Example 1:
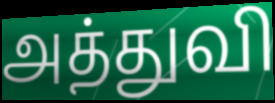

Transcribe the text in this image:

அத்துவி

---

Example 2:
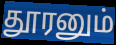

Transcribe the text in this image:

தூரனும்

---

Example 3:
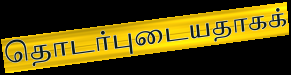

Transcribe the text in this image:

தொடர்புடையதாகக்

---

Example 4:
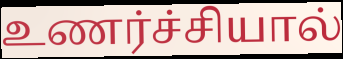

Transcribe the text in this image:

உணர்ச்சியால்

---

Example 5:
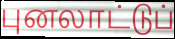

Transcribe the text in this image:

புனலாட்டுப்